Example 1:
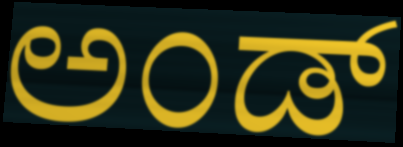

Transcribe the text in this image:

ಅಂಡ್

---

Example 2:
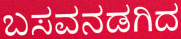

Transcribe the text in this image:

ಬಸವನಡಗಿದ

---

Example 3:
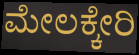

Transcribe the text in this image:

ಮೇಲಕ್ಕೇರಿ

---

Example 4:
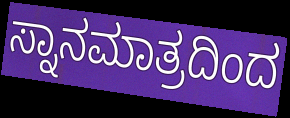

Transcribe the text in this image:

ಸ್ನಾನಮಾತ್ರದಿಂದ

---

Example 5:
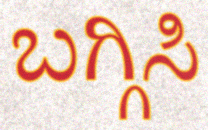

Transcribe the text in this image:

ಬಗ್ಗಿಸಿ